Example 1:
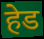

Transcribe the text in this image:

हेड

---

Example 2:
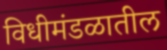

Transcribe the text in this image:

विधीमंडळातील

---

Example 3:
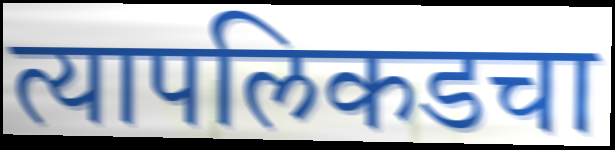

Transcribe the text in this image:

त्यापलिकडचा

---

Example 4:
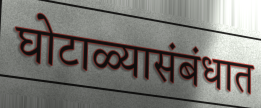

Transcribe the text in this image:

घोटाळ्यासंबंधात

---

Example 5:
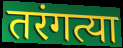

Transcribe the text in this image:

तरंगत्या